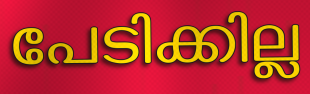
പേടിക്കില്ല